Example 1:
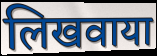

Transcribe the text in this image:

लिखवाया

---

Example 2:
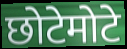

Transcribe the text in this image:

छोटेमोटे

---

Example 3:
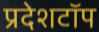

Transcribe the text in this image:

प्रदेशटॉप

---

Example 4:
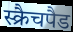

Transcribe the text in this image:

स्क्रैचपैड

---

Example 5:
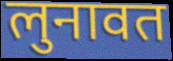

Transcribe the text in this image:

लुनावत